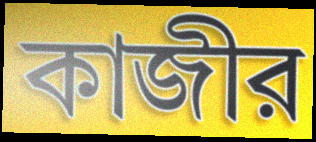
কাজীর